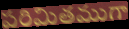
పరిమితముగా